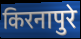
किरनापुरे